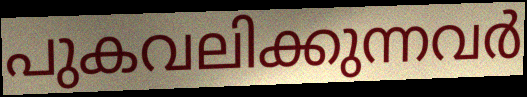
പുകവലിക്കുന്നവർ